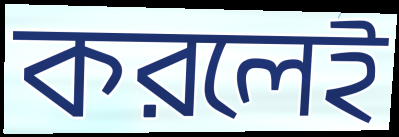
করলেই